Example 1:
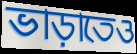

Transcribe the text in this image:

ভাড়াতেও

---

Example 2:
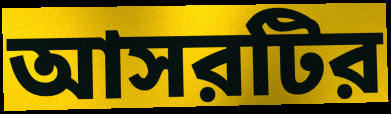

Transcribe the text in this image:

আসরটির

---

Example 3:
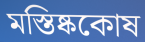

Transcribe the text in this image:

মস্তিষ্ককোষ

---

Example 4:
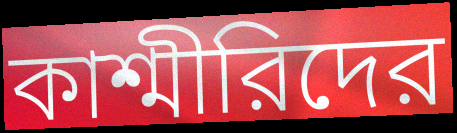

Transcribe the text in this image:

কাশ্মীরিদের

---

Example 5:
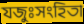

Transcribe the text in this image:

যজুঃসংহিতা